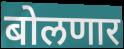
बोलणार